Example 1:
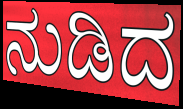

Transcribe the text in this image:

ನುಡಿದ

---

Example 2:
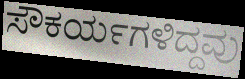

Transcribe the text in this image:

ಸೌಕರ್ಯಗಳಿದ್ದವು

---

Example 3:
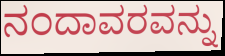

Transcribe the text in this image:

ನಂದಾವರವನ್ನು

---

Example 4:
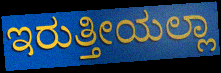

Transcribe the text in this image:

ಇರುತ್ತೀಯಲ್ಲಾ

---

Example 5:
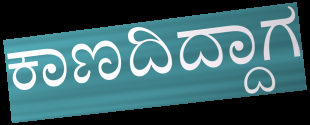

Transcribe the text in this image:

ಕಾಣದಿದ್ದಾಗ